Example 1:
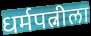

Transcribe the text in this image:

धर्मपत्नीला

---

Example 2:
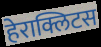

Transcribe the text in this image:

हेराक्लिटस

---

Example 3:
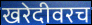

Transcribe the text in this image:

खरेदीवरच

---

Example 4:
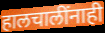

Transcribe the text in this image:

हालचालींनाही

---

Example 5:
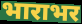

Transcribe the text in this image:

भाराभर